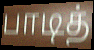
பாடித்